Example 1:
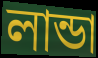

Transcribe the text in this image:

লান্ডা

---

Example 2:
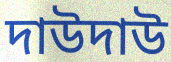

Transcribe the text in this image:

দাউদাউ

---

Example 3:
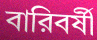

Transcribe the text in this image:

বারিবর্ষী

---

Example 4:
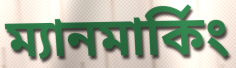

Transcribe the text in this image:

ম্যানমার্কিং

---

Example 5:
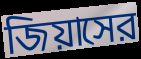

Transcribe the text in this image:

জিয়াসের